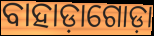
ବାହାଡ଼ାଗୋଡ଼ା